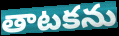
తాటకను